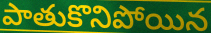
పాతుకొనిపోయిన